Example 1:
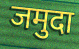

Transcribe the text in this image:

जमुदा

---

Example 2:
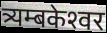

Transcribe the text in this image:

त्र्यम्बकेश्वर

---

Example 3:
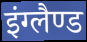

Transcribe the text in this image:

इंग्लैण्ड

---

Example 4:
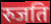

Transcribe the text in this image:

रुजति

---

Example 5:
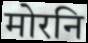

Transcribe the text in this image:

मोरनि